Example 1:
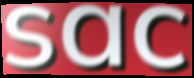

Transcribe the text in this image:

sac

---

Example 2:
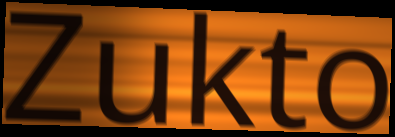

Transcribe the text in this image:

Zukto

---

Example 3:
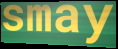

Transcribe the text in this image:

smay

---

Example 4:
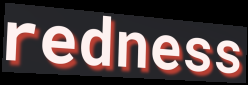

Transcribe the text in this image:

redness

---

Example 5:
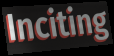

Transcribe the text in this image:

Inciting